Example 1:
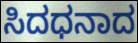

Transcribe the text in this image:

ಸಿದಧನಾದ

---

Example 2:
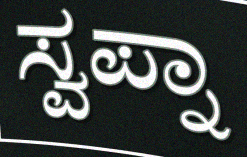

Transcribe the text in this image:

ಸ್ವಪ್ನಾ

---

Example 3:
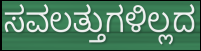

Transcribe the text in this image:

ಸವಲತ್ತುಗಳಿಲ್ಲದ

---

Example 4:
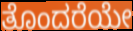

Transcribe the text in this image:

ತೊಂದರೆಯೇ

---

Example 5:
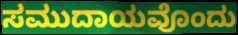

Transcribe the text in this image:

ಸಮುದಾಯವೊಂದು